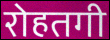
रोहतगी